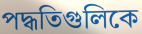
পদ্ধতিগুলিকে